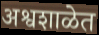
अश्वशाळेत